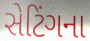
સેટિંગના